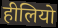
हीलियो